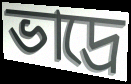
ভাদ্রে